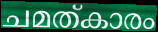
ചമത്കാരം